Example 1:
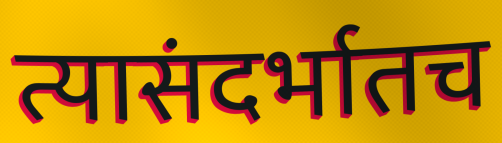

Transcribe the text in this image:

त्यासंदर्भातच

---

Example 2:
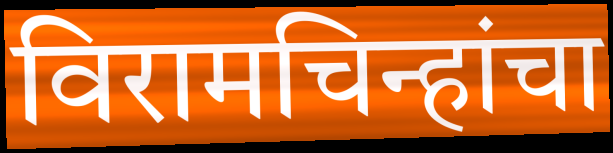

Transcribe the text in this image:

विरामचिन्हांचा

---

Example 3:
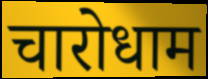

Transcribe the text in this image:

चारोधाम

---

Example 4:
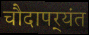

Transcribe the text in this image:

चौदापर्यंत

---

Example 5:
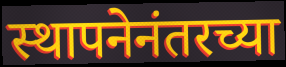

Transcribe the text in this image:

स्थापनेनंतरच्या